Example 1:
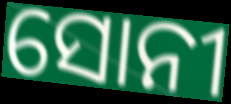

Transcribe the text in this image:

ସୋନୀ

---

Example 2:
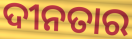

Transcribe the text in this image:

ଦୀନତାର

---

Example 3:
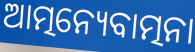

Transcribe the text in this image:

ଆତ୍ମନ୍ୟେବାତ୍ମନା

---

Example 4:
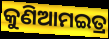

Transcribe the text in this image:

କୁଣିଆମଇତ୍ର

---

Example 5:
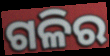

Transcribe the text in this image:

ଗଳିର